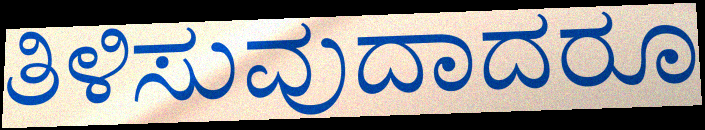
ತಿಳಿಸುವುದಾದರೂ